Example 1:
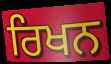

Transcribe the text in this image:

ਰਿਖਨ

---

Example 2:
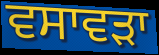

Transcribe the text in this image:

ਵਸਾਵੜਾ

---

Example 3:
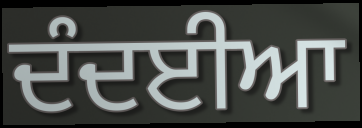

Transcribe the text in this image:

ਦੰਦਈਆ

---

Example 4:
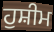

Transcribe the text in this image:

ਹੁਸ਼ੀਮ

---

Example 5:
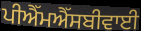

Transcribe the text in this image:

ਪੀਐੱਮਐੱਸਬੀਵਾਈ